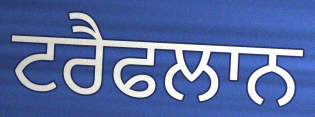
ਟਰੈਫਲਾਨ